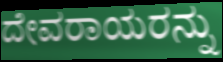
ದೇವರಾಯರನ್ನು